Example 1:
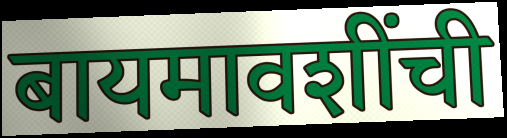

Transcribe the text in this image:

बायमावशींची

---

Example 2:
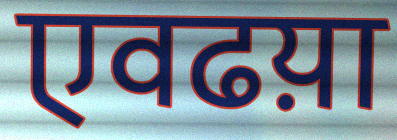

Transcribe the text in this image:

एवढय़ा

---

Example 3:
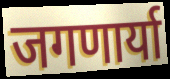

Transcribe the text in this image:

जगणार्या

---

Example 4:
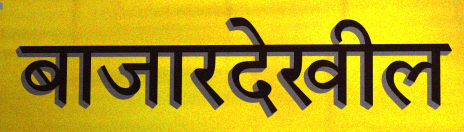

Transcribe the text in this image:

बाजारदेखील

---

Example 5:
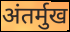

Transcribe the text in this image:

अंतर्मुख